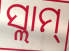
ସ୍ଲାମ୍